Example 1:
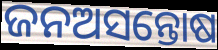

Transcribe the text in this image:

ଜନଅସନ୍ତୋଷ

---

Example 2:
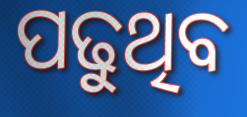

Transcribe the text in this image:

ପଢୁଥିବ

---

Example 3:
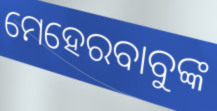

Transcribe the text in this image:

ମେହେରବାବୁଙ୍କ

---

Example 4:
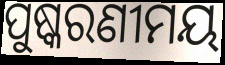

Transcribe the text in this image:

ପୁଷ୍କରଣୀମୟ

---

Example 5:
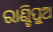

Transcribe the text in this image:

ରାଣ୍ଡିପୁଅ